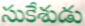
సుకేశుడు